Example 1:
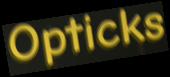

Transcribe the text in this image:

Opticks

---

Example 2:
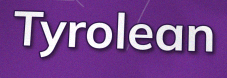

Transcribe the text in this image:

Tyrolean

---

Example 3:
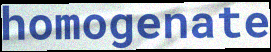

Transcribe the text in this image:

homogenate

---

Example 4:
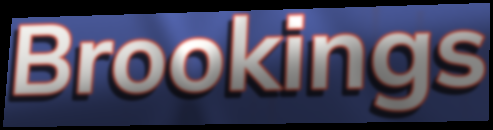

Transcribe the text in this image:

Brookings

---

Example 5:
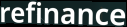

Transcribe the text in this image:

refinance